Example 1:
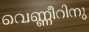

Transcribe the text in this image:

വെണ്ണീറിനു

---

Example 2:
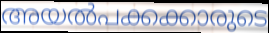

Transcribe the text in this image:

അയൽപക്കക്കാരുടെ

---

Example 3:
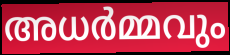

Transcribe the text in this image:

അധർമ്മവും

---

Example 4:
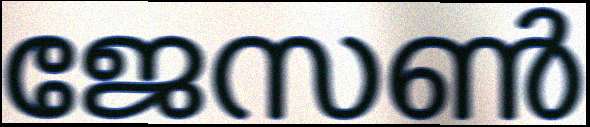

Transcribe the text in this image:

ജേസൺ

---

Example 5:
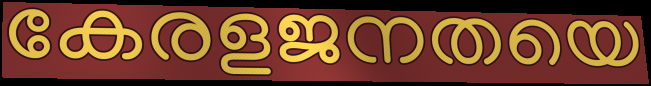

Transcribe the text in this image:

കേരളജനതയെ